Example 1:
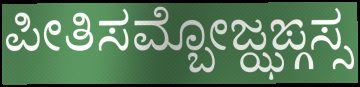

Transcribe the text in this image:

ಪೀತಿಸಮ್ಬೋಜ್ಝಙ್ಗಸ್ಸ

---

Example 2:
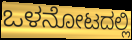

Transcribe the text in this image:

ಒಳನೋಟದಲ್ಲಿ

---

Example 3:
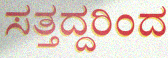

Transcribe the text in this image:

ಸತ್ತದ್ದರಿಂದ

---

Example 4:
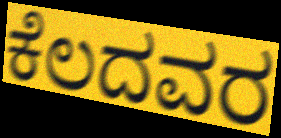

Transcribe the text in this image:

ಕೆಲದವರ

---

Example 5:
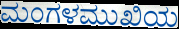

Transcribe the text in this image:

ಮಂಗಳಮುಖಿಯ